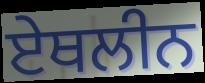
ਏਥਲੀਨ